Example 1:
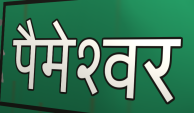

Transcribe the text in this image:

पैमेश्वर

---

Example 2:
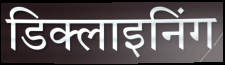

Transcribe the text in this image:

डिक्लाइनिंग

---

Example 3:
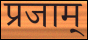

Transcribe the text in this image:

प्रजाम्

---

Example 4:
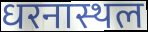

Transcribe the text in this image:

धरनास्थल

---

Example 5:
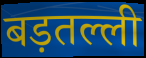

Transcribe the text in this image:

बड़तल्ली